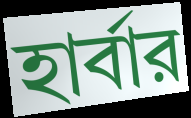
হার্বার